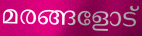
മരങ്ങളോട്